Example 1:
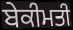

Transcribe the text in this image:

ਬੇਕੀਮਤੀ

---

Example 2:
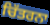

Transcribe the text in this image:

ਚਿੱਤਰਨਾ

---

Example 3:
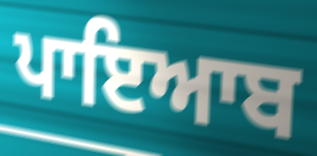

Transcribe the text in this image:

ਪਾਇਆਬ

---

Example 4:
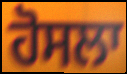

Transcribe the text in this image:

ਹੋਸਲਾ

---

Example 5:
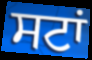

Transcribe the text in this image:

ਸਟਾਂ